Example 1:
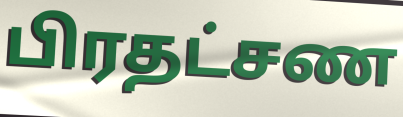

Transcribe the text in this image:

பிரதட்சண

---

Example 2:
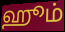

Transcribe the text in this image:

ஹூம்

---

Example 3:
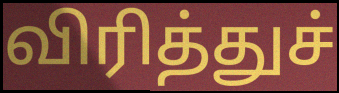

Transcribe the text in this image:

விரித்துச்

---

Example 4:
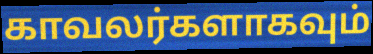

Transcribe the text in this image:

காவலர்களாகவும்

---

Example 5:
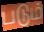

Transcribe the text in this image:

படும்